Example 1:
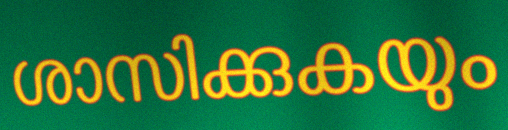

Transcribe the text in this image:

ശാസിക്കുകയും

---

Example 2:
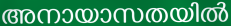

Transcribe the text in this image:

അനായാസതയിൽ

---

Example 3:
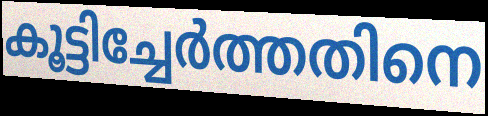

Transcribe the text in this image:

കൂട്ടിച്ചേർത്തതിനെ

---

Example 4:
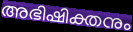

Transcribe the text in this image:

അഭിഷിക്തനും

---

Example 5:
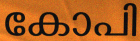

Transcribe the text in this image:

കോപി